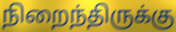
நிறைந்திருக்கு